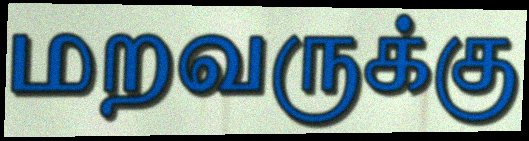
மறவருக்கு